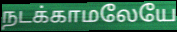
நடக்காமலேயே